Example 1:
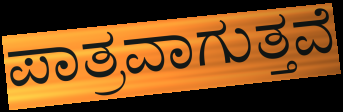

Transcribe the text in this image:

ಪಾತ್ರವಾಗುತ್ತವೆ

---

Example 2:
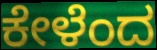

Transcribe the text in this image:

ಕೇಳೆಂದ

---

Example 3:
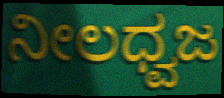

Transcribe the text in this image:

ನೀಲಧ್ವಜ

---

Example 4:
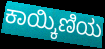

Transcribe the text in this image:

ಕಾಯ್ಕಿಣಿಯ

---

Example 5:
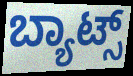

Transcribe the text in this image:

ಬ್ಯಾಟ್ಸ್